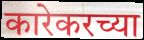
कारेकरच्या